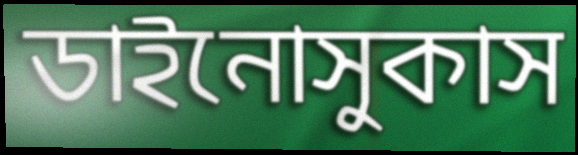
ডাইনোসুকাস